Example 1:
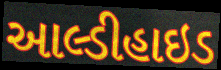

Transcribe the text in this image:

આલ્ડીહાઇડ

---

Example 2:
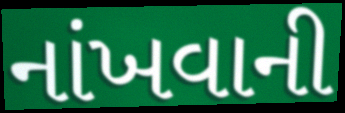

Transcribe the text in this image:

નાંખવાની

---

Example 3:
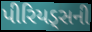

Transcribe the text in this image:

પીરિયડ્સની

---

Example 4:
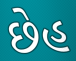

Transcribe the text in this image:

છેહ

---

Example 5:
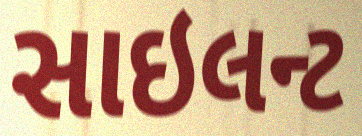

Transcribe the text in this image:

સાઇલન્ટ